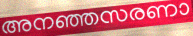
അനഞ്ഞസരണാ